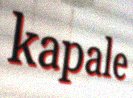
kapale